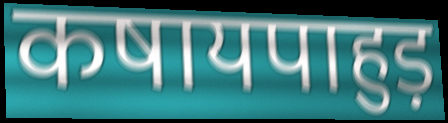
कषायपाहुड़